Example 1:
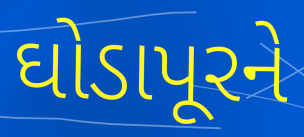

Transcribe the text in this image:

ઘોડાપૂરને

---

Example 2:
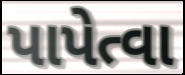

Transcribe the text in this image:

પાપેત્વા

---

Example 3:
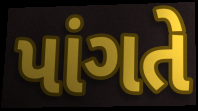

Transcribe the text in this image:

પાંગતે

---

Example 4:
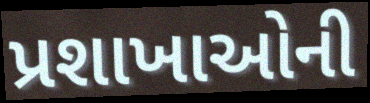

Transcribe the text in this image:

પ્રશાખાઓની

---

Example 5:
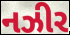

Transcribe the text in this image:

નઝીર